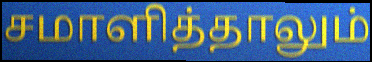
சமாளித்தாலும்